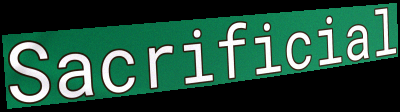
Sacrificial